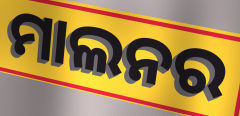
ମାଲନର